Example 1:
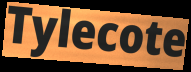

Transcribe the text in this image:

Tylecote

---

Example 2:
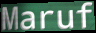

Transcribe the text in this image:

Maruf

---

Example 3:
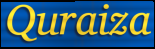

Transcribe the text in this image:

Quraiza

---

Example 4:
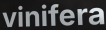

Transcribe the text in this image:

vinifera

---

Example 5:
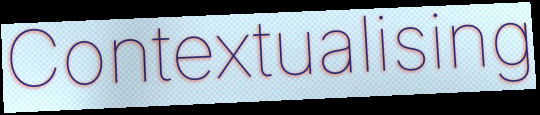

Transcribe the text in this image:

Contextualising